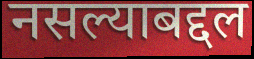
नसल्याबद्दल